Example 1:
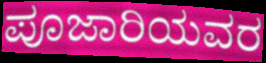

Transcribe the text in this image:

ಪೂಜಾರಿಯವರ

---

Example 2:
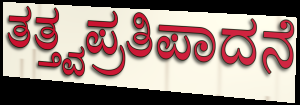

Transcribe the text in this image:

ತತ್ತ್ವಪ್ರತಿಪಾದನೆ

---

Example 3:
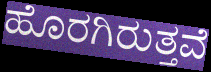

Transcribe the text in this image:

ಹೊರಗಿರುತ್ತವೆ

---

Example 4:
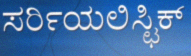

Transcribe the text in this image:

ಸರ್ರಿಯಲಿಸ್ಟಿಕ್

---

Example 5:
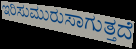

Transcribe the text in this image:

ಇರಿಸುಮುರುಸಾಗುತ್ತದೆ